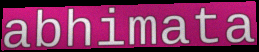
abhimata